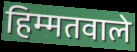
हिम्मतवाले